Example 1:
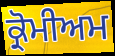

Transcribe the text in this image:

ਕ੍ਰੋਮੀਅਮ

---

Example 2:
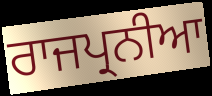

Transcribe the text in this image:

ਰਾਜਪ੍ਰਨੀਆ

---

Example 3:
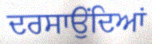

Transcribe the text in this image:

ਦਰਸਾਉਂਦਿਆਂ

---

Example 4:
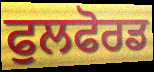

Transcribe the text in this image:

ਫੁਲਫੋਰਡ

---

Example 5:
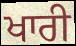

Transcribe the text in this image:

ਖਾਰੀ